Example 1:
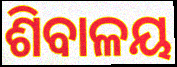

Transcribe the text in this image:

ଶିବାଳୟ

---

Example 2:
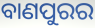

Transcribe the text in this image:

ବାଣପୁରର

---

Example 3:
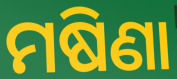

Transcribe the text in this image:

ମଷିଣା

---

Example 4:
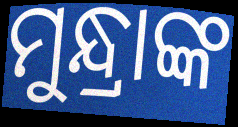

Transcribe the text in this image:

ମୁନ୍ଧ୍ରାଙ୍କ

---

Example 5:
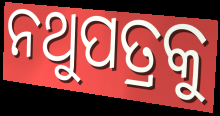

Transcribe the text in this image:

ନଥୁପତ୍ରକୁ